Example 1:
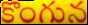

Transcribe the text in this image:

కొంగున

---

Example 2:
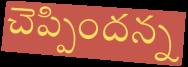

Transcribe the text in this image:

చెప్పిందన్న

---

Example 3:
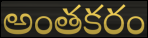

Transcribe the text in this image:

అంతకరం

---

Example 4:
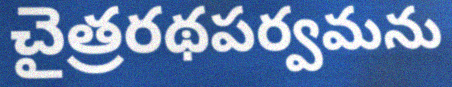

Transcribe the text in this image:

చైత్రరథపర్వమను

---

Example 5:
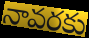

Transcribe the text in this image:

నావరకు